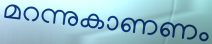
മറന്നുകാണണം